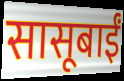
सासूबाईं